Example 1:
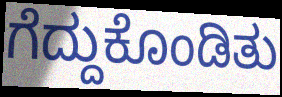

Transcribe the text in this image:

ಗೆದ್ದುಕೊಂಡಿತು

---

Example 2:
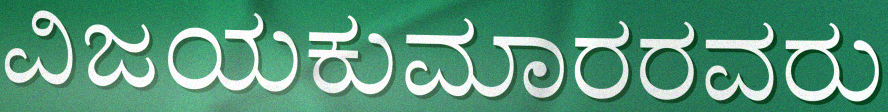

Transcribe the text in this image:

ವಿಜಯಕುಮಾರರವರು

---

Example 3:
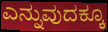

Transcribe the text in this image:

ಎನ್ನುವುದಕ್ಕೂ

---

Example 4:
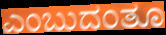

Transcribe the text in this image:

ಎಂಬುದಂತೂ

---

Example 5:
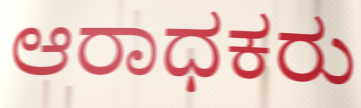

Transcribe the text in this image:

ಆರಾಧಕರು